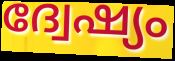
ദ്വേഷ്യം